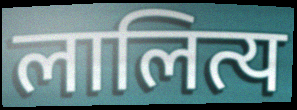
लालित्य